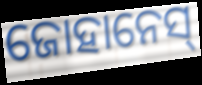
ଜୋହାନେସ୍